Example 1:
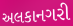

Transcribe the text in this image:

અલકાનગરી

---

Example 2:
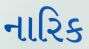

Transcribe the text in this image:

નારિક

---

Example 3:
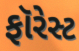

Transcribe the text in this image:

ફૉરેસ્ટ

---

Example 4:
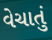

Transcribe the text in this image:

વેચાતું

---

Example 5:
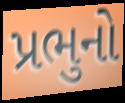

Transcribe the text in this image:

પ્રભુનો